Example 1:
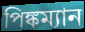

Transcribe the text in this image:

পিঙ্কম্যান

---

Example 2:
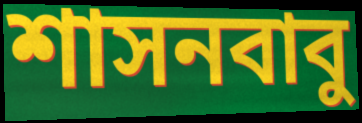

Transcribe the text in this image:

শাসনবাবু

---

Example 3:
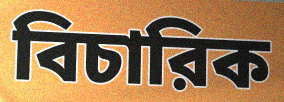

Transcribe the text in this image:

বিচারিক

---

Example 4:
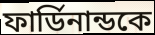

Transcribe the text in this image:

ফার্ডিনান্ডকে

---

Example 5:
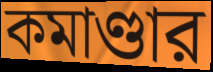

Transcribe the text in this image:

কমাণ্ডার